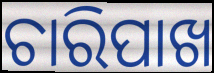
ଚାରିପାଖ